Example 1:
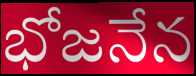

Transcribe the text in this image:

భోజనేన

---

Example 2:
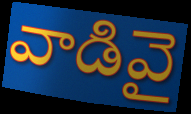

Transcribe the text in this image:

వాడివై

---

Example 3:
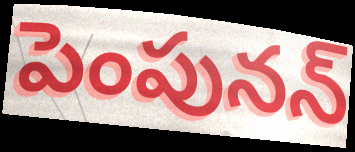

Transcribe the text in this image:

పెంపునన్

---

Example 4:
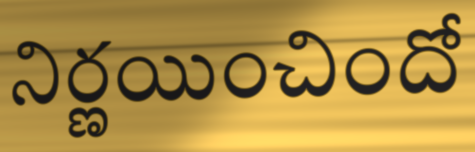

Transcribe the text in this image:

నిర్ణయించిందో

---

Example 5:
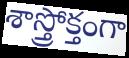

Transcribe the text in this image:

శాస్త్రోక్తంగా